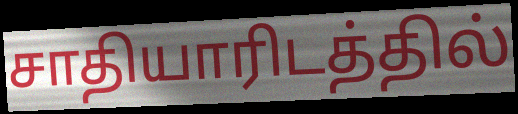
சாதியாரிடத்தில்